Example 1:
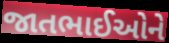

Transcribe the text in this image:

જાતભાઈઓને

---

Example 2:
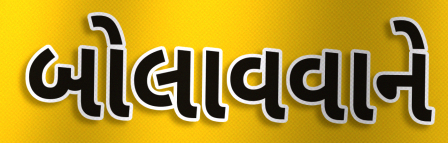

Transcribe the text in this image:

બોલાવવાને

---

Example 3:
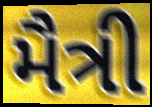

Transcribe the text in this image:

મૈત્રી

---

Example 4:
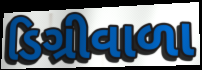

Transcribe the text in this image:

ડિગ્રીવાળા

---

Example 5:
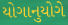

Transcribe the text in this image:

યોગાનુયોગે